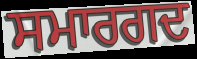
ਸਮਾਰਗਦ